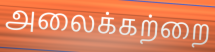
அலைக்கற்றை